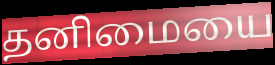
தனிமையை